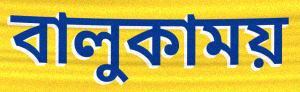
বালুকাময়